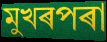
মুখৰপৰা